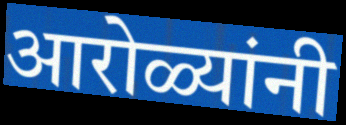
आरोळ्यांनी